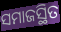
ସମାଜସ୍ଥିତ